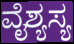
ವೈಶ್ಯಸ್ಯ